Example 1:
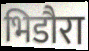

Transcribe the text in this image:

भिडौरा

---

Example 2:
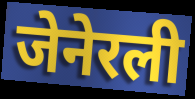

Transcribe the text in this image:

जेनेरली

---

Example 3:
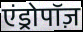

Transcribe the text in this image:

एंड्रोपॉज़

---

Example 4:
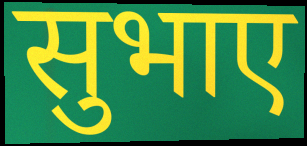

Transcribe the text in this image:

सुभाए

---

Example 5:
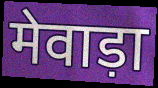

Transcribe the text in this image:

मेवाड़ा